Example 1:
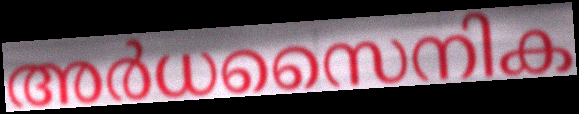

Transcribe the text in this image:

അർധസൈനിക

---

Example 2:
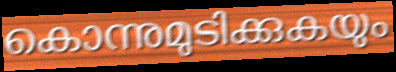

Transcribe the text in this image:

കൊന്നുമുടിക്കുകയും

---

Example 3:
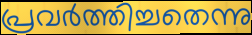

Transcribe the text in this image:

പ്രവർത്തിച്ചതെന്നു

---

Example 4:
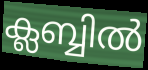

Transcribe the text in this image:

ക്ലബ്ബിൽ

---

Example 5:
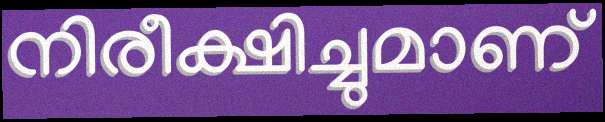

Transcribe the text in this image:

നിരീക്ഷിച്ചുമാണ്